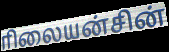
ரிலையன்சின்